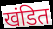
खंडित